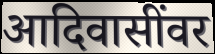
आदिवासींवर